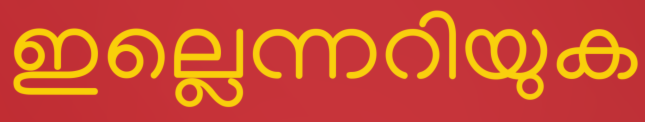
ഇല്ലെന്നറിയുക